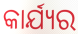
କାର୍ଯ୍ୟର